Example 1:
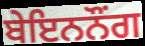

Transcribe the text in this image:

ਬੇਇਨਨੌੰਗ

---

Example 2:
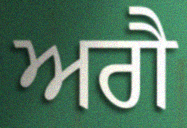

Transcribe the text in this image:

ਅਗੈ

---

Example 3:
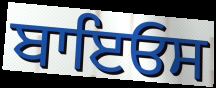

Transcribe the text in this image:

ਬਾਇਓਸ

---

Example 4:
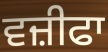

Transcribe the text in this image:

ਵਜ਼ੀਫਾ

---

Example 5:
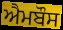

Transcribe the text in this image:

ਐਮਬੌਸ